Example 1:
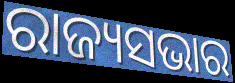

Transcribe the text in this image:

ରାଜ୍ୟସଭାର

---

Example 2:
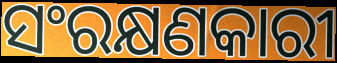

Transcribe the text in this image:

ସଂରକ୍ଷଣକାରୀ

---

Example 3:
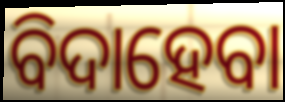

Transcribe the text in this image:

ବିଦାହେବା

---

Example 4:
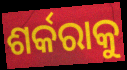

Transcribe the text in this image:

ଶର୍କରାକୁ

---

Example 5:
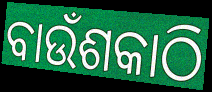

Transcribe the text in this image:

ବାଉଁଶକାଠି